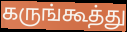
கருங்கூத்து